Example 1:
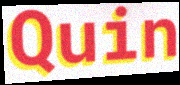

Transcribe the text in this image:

Quin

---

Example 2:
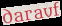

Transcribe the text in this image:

darauf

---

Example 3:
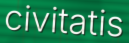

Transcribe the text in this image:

civitatis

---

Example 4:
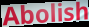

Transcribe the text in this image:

Abolish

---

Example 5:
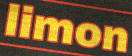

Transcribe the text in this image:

limon